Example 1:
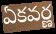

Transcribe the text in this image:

ఏకవర్ణ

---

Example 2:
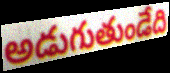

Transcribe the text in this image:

అడుగుతుండేది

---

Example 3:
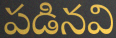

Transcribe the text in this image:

పడినవి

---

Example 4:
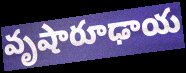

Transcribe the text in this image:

వృషారూఢాయ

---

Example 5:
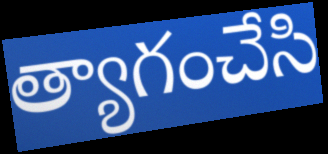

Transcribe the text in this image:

త్యాగంచేసి